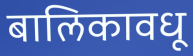
बालिकावधू